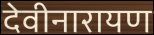
देवीनारायण